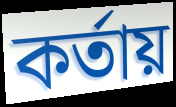
কর্তায়